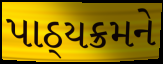
પાઠ્યક્રમને